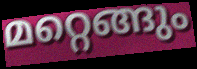
മറ്റെങ്ങും